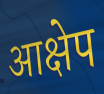
आक्षेप